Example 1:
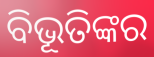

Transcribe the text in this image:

ବିଭୂତିଙ୍କର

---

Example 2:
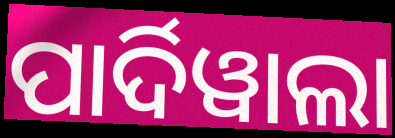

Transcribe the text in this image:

ପାର୍ଦିୱାଲା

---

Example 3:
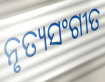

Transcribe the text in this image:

ନୃତ୍ୟସଂଗୀତ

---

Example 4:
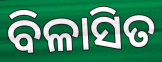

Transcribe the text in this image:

ବିଳାସିତ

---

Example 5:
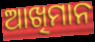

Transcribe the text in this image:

ଆଖିମାନ